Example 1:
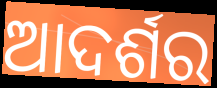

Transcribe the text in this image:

ଆଦର୍ଶର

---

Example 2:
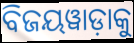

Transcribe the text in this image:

ବିଜୟୱାଡ଼ାକୁ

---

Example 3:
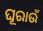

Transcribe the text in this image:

ଘୂରାଉଁ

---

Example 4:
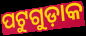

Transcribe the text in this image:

ପଟୁଗୁଡ଼ାକ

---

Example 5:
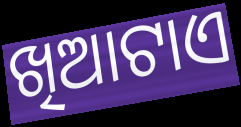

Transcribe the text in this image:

ଖିଆଟାଏ